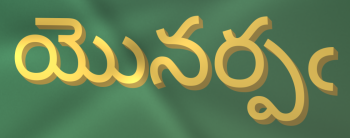
యొనర్పఁ